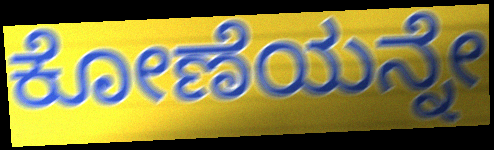
ಕೋಣೆಯನ್ನೇ